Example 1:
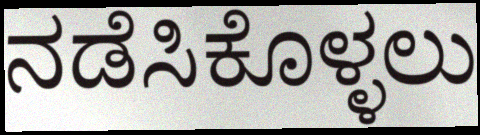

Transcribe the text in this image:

ನಡೆಸಿಕೊಳ್ಳಲು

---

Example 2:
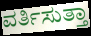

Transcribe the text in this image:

ವರ್ತಿಸುತ್ತಾ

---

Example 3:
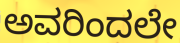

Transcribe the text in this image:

ಅವರಿಂದಲೇ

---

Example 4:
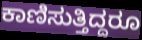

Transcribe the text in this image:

ಕಾಣಿಸುತ್ತಿದ್ದರೂ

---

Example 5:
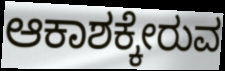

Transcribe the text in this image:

ಆಕಾಶಕ್ಕೇರುವ